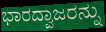
ಭಾರದ್ವಾಜರನ್ನು